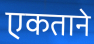
एकताने